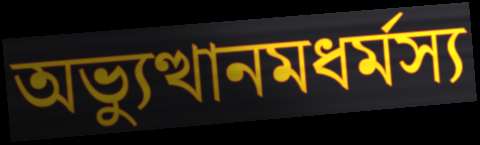
অভ্যুত্থানমধর্মস্য